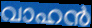
വാഹൻ